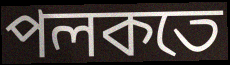
পলকতে